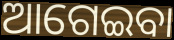
ଆଗେଇବା